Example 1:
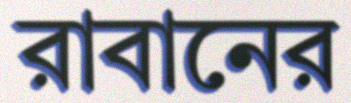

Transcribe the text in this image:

রাবানের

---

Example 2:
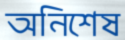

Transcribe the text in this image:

অনিশেষ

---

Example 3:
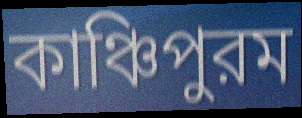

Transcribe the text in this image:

কাঞ্চিপুরম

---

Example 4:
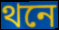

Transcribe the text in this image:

থনে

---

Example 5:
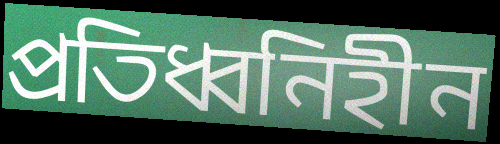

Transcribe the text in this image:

প্রতিধ্বনিহীন